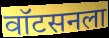
वॉटसनला